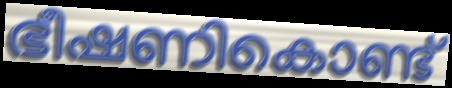
ഭീഷണികൊണ്ട്